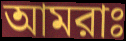
আমরাঃ